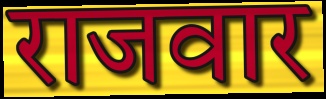
राजवार